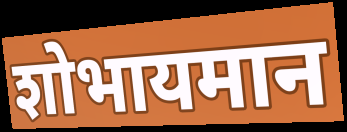
शोभायमान